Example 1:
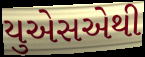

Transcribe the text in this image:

યુએસએથી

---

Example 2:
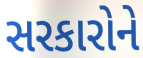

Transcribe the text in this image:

સરકારોને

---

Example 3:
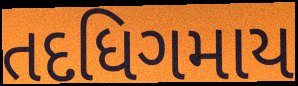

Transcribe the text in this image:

તદધિગમાય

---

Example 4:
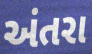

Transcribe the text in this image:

અંતરા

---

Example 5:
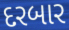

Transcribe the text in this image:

દરબાર